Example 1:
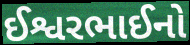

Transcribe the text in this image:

ઈશ્વરભાઈનો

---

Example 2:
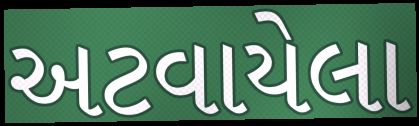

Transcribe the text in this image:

અટવાયેલા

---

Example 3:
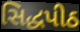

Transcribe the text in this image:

સિદ્ધપીઠ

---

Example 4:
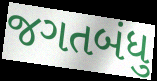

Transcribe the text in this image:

જગતબંધુ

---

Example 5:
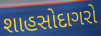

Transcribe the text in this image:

શાહસોદાગરો